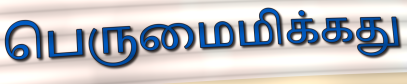
பெருமைமிக்கது